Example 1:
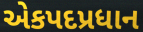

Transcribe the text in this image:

એકપદપ્રધાન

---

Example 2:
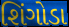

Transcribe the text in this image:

શિંગોડા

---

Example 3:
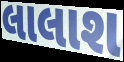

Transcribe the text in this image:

લાલાશ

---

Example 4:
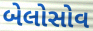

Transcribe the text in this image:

બેલોસોવ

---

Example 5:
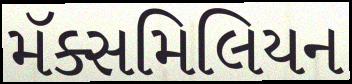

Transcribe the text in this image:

મૅક્સમિલિયન